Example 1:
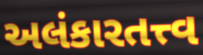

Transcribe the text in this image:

અલંકારતત્ત્વ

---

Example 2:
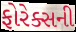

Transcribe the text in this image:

ફોરેક્સની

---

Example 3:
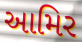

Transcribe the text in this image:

આમિર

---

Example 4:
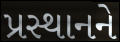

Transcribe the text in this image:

પ્રસ્થાનને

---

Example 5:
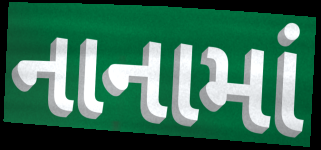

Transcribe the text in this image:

નાનામાં